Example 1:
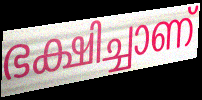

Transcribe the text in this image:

ഭക്ഷിച്ചാണ്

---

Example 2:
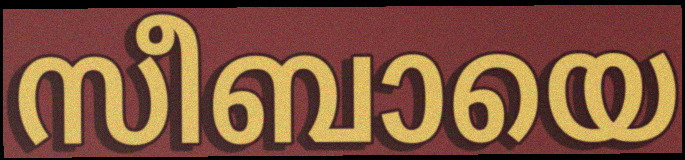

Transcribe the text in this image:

സീബായെ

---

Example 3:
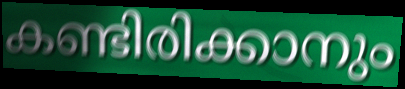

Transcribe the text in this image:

കണ്ടിരിക്കാനും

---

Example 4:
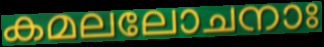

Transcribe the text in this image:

കമലലോചനാഃ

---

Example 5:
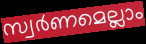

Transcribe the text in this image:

സ്വർണമെല്ലാം